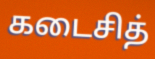
கடைசித்